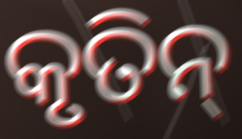
କୃତିନ୍